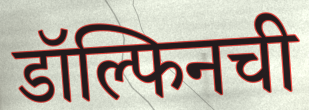
डॉल्फिनची